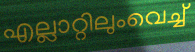
എല്ലാറ്റിലുംവെച്ച്